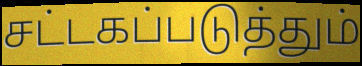
சட்டகப்படுத்தும்